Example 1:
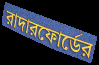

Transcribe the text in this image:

রাদারফোর্ডের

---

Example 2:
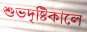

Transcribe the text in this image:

শুভদৃষ্টিকালে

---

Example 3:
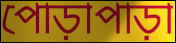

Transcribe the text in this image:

পোড়াপাড়া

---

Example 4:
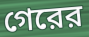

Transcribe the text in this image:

গেরের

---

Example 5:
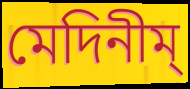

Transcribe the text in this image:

মেদিনীম্